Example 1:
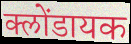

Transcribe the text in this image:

क्लोंडायक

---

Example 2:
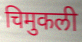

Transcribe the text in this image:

चिमुकली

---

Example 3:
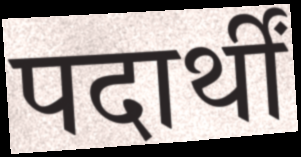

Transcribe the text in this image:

पदार्थीं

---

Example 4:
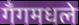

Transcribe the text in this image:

गँगमधले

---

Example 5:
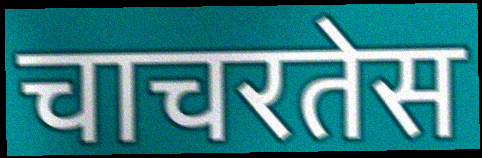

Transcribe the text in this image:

चाचरतेस